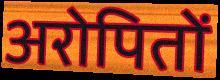
अरोपितों